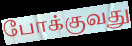
போக்குவது